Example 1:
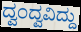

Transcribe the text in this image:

ದ್ವಂದ್ವವಿದ್ದು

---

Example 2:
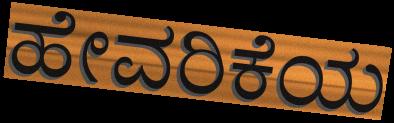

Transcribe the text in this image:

ಹೇವರಿಕೆಯ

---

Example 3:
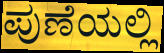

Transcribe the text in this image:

ಪುಣೆಯಲ್ಲಿ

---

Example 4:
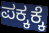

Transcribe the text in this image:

ಪಕ್ಕಕ್ಕೆ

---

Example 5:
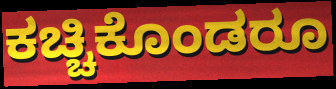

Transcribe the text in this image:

ಕಚ್ಚಿಕೊಂಡರೂ